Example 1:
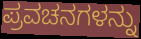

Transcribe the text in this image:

ಪ್ರವಚನಗಳನ್ನು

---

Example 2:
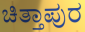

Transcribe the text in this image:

ಚಿತ್ತಾಪುರ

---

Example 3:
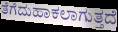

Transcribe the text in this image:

ತೆಗೆದುಹಾಕಲಾಗುತ್ತದೆ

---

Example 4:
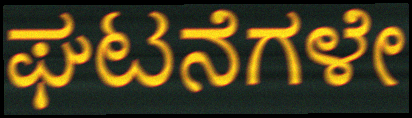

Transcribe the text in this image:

ಘಟನೆಗಳೇ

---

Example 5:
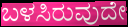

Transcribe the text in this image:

ಬಳಸಿರುವುದೇ